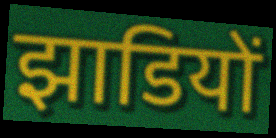
झाडियों